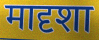
मादृशा